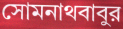
সোমনাথবাবুর